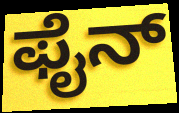
ಫೈನ್